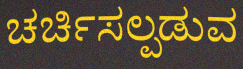
ಚರ್ಚಿಸಲ್ಪಡುವ